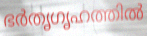
ഭർതൃഗൃഹത്തിൽ